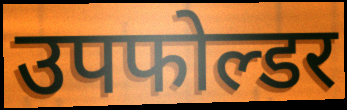
उपफोल्डर